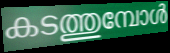
കടത്തുമ്പോൾ